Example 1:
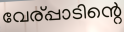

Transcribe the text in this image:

വേര്പ്പാടിന്റെ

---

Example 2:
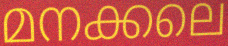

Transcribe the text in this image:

മനക്കലെ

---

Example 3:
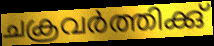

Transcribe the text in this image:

ചക്രവർത്തിക്കു്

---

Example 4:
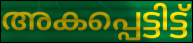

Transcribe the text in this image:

അകപ്പെട്ടിട്ട്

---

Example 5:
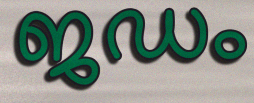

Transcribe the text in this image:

ജഡം